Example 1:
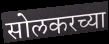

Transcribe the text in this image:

सोलकरच्या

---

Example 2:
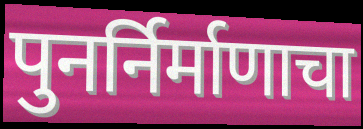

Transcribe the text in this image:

पुनर्निर्माणाचा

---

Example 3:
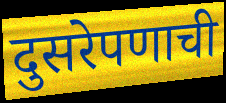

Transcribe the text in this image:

दुसरेपणाची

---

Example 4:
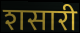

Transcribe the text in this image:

शसारी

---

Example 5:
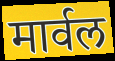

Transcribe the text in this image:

मार्वल